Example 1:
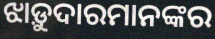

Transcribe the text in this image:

ଝାଡ଼ୁଦାରମାନଙ୍କର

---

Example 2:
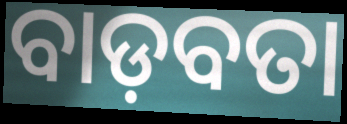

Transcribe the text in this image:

ବାଡ଼ବତା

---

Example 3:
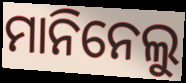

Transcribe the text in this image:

ମାନିନେଲୁ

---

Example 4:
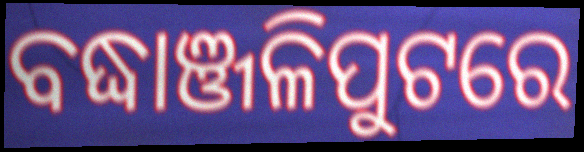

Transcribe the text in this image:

ବଦ୍ଧାଞ୍ଜଳିପୁଟରେ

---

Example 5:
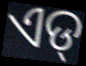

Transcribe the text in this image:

ଏଡ୍